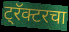
ट्रॅक्टरचा